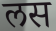
लस